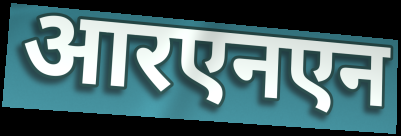
आरएनएन